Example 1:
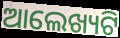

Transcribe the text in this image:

ଆଲେଖ୍ୟଟି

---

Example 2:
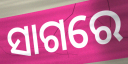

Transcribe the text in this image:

ସାଗରେ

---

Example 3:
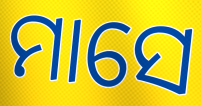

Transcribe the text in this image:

ମାସେ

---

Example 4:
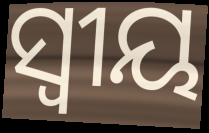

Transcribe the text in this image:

ସ୍ୱୀୟ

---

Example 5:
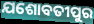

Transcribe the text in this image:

ଯଶୋବତୀପୁର